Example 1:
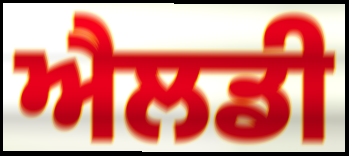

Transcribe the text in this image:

ਐਲਡੀ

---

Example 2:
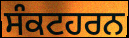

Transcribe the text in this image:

ਸੰਕਟਹਰਨ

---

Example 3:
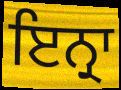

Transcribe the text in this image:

ਇਨ੍ਰਾ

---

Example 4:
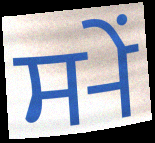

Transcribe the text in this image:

ਸ੍ਮੇਂ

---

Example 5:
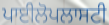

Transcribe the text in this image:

ਪਾਈਲੋਪਲਾਸਟੀ